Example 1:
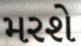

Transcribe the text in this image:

મરશે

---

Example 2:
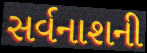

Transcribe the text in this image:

સર્વનાશની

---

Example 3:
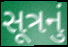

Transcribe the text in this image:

સૂત્રનું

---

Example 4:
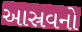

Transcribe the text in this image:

આસ્રવનો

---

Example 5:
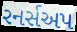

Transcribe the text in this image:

રનર્સઅપ